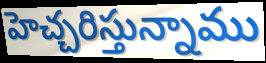
హెచ్చరిస్తున్నాము